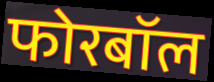
फोरबॉल